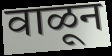
वाळून